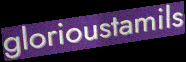
glorioustamils